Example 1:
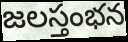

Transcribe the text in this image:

జలస్తంభన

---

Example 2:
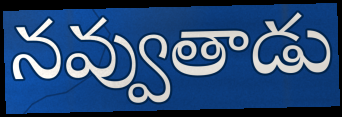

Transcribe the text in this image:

నవ్వుతాడు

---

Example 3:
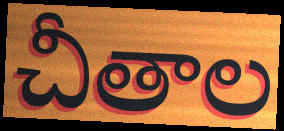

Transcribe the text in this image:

చీతాల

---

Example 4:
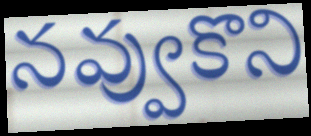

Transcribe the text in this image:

నవ్వుకొని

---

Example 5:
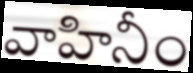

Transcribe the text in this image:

వాహినీం